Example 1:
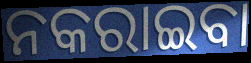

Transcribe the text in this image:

ନକରାଇବା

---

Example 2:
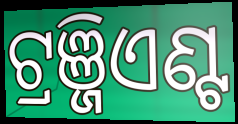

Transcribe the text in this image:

ଟ୍ରଞ୍ଜିଏଣ୍ଟ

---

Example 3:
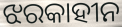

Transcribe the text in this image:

ଝରକାହୀନ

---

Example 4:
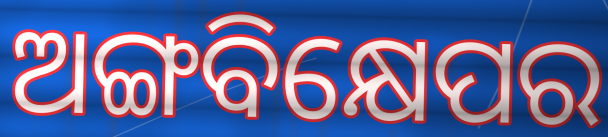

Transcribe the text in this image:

ଅଙ୍ଗବିକ୍ଷେପର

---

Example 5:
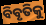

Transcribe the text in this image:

ବିବୃତିକୁ